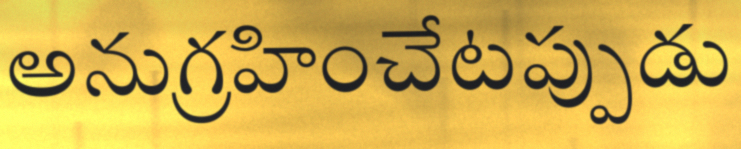
అనుగ్రహించేటప్పుడు